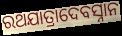
ରଥଯାତ୍ରାଦେବସ୍ନାନ